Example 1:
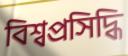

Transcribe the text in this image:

বিশ্বপ্ৰসিদ্ধি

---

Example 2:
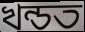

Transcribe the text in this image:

খন্ডত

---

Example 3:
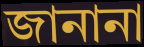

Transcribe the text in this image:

জানানা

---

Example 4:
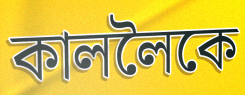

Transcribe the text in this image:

কাললৈকে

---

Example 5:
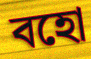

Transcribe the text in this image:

বহো